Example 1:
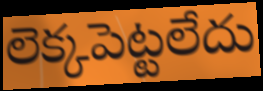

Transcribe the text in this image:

లెక్కపెట్టలేదు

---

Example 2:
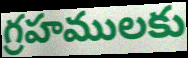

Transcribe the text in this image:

గ్రహములకు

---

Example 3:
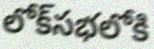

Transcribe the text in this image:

లోక్‌సభలోకి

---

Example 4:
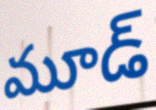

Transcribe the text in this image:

మూడ్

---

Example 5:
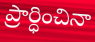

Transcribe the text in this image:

ప్రార్ధించినా